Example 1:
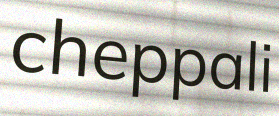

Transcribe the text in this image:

cheppali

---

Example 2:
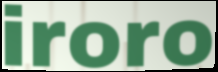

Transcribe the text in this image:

iroro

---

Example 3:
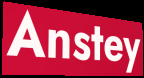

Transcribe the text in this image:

Anstey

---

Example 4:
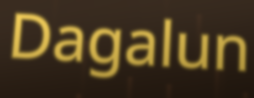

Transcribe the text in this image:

Dagalun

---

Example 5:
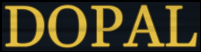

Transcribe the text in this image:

DOPAL